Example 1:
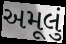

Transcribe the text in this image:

અમૂલું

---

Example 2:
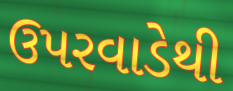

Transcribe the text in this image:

ઉપરવાડેથી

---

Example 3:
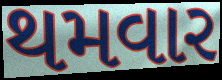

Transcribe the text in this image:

થમવાર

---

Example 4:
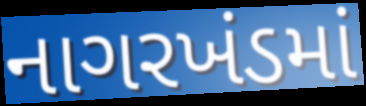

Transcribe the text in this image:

નાગરખંડમાં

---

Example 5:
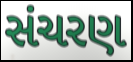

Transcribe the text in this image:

સંચરણ